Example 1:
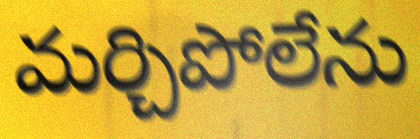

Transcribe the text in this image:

మర్చిపోలేను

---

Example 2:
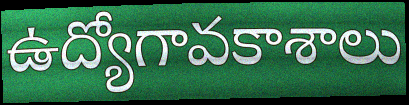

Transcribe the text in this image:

ఉద్యోగావకాశాలు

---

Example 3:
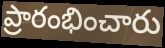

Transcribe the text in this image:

ప్రారంభించారు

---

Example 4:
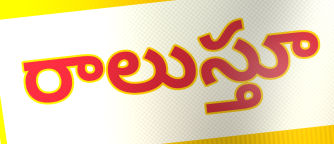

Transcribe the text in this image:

రాలుస్తూ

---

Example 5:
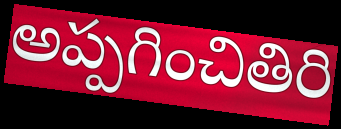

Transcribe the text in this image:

అప్పగించితిరి